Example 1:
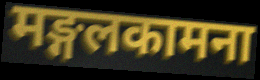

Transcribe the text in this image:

मङ्गलकामना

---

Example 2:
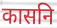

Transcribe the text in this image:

कासनि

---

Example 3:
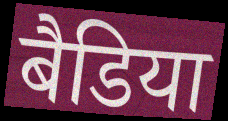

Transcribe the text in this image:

बैडिया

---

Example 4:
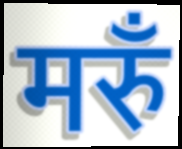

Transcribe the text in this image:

मरुँ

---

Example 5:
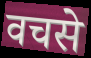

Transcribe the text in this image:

वचसे